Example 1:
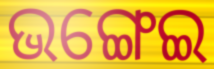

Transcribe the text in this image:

ଭଙ୍ଗେଇ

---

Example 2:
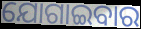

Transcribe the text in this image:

ଯୋଗାଇବାର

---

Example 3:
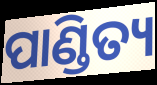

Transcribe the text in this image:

ପାଣ୍ଡିତ୍ୟ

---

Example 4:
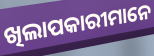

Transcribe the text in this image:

ଖିଲାପକାରୀମାନେ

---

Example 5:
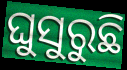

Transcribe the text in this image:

ଘୁସୁରୁଛି